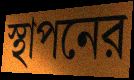
স্থাপনের